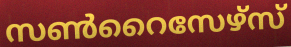
സൺറൈസേഴ്സ്